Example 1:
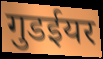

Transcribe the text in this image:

गुडईयर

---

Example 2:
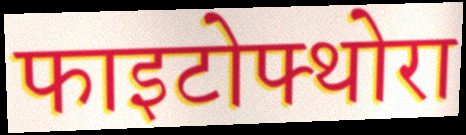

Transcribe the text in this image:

फाइटोफ्थोरा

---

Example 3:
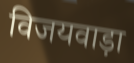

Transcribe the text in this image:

विजयवाड़ा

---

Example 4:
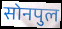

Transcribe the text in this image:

सोनपुल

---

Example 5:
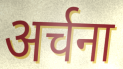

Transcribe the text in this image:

अर्चना